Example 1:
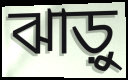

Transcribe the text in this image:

ঝাড়ু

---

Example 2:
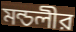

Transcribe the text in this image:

মন্ডলীর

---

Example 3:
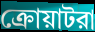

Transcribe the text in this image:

ক্রোয়াটরা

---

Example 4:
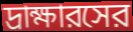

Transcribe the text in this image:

দ্রাক্ষারসের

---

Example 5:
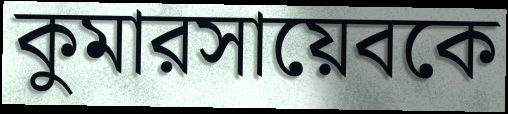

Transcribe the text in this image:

কুমারসায়েবকে